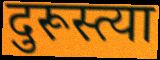
दुरूस्त्या